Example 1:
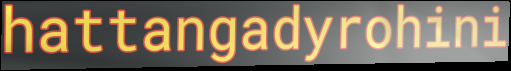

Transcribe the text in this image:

hattangadyrohini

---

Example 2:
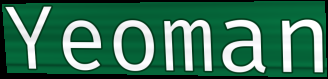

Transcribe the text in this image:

Yeoman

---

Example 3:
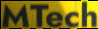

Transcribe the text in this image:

MTech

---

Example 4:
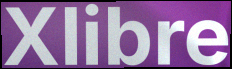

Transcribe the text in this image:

Xlibre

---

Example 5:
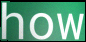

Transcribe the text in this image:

how